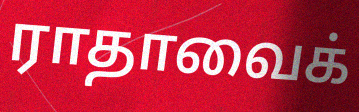
ராதாவைக்